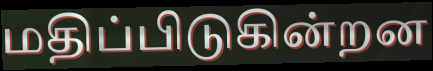
மதிப்பிடுகின்றன